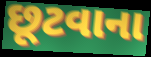
છૂટવાના